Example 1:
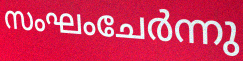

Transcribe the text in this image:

സംഘംചേർന്നു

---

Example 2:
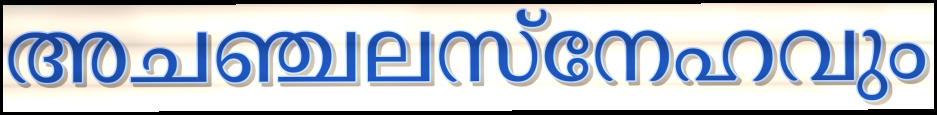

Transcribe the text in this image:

അചഞ്ചലസ്നേഹവും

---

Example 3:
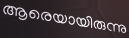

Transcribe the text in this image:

ആരെയായിരുന്നു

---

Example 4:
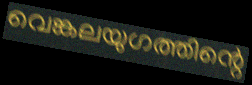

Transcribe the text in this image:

വെങ്കലയുഗത്തിന്റെ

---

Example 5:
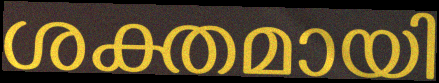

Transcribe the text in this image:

ശക്തമായി